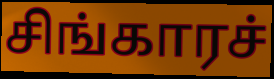
சிங்காரச்